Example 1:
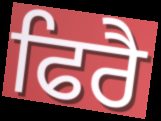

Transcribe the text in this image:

ਫਿਰੈ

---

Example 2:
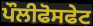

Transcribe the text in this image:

ਪੌਲੀਫੋਸਫੇਟ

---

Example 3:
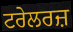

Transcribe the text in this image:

ਟਰੇਲਰਜ਼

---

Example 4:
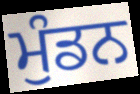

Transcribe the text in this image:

ਮੁੰਡਨ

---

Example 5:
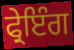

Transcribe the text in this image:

ਫ੍ਰੇਇੰਗ